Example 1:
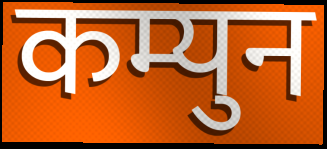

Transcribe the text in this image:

कम्युन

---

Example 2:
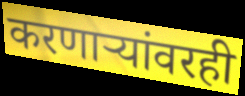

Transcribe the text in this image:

करणाऱ्यांवरही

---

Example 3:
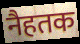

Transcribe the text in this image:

नैहतक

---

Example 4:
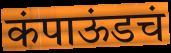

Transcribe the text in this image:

कंपाऊंडचं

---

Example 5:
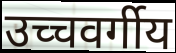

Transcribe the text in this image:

उच्चवर्गीय